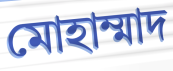
মোহাম্মাদ